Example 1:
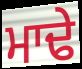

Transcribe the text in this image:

ਮਾਢੇ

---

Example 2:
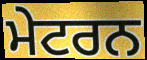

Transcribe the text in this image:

ਮੇਟਰਨ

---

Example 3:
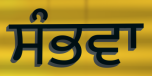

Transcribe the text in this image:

ਸੰਭਵਾ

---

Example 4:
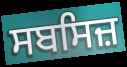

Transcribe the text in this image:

ਸਬਸਿਜ਼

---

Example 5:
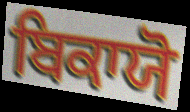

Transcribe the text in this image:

ਬਿਕਾਯੋ